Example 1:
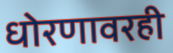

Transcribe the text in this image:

धोरणावरही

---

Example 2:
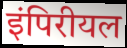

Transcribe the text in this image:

इंपिरीयल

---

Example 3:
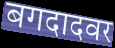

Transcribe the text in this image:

बगदादवर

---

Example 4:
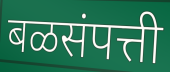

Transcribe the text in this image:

बळसंपत्ती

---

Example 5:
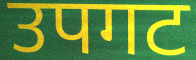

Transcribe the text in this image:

उपगट